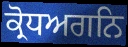
ਕ੍ਰੋਧਅਗਨਿ